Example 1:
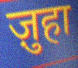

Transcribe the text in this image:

ज़ुहा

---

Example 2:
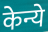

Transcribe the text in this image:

केन्ये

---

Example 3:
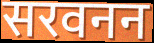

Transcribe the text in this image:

सरवनन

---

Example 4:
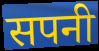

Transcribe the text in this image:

सपनी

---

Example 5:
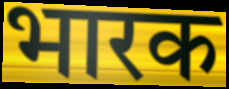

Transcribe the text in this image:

भारक